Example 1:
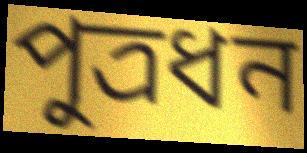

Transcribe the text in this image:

পুত্রধন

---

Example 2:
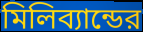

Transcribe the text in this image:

মিলিব্যান্ডের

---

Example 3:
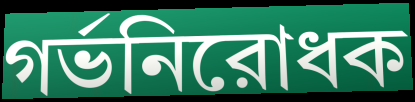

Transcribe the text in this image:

গর্ভনিরোধক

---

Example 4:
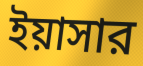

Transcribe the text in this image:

ইয়াসার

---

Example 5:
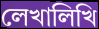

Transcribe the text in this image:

লেখালিখি